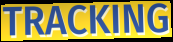
TRACKING